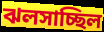
ঝলসাচ্ছিল